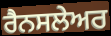
ਰੈਨਸਲੇਅਰ